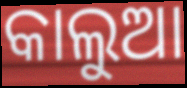
କାଲୁଆ